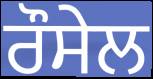
ਰੌਸੇਲ